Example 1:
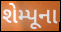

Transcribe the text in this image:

શેમ્પૂના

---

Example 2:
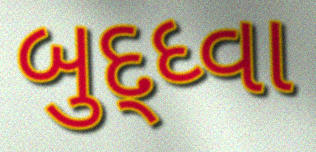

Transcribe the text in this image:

બુદ્ધ્વા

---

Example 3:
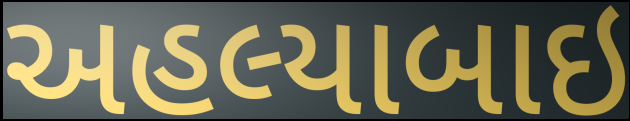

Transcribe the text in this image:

અહલ્યાબાઇ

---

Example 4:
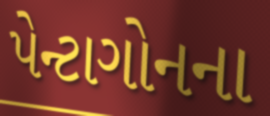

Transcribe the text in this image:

પેન્ટાગોનના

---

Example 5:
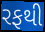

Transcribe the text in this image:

રફથી